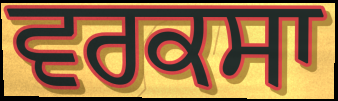
ਵਰਕਸਾ